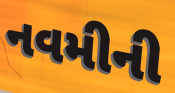
નવમીની